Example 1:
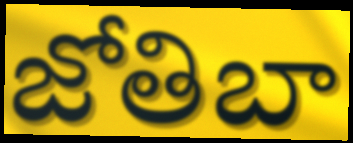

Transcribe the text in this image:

జోతిబా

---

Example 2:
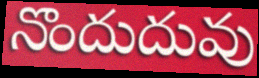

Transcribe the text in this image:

నొందుదువు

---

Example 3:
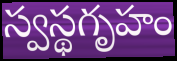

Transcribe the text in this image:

స్వస్థగృహం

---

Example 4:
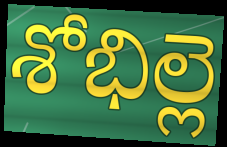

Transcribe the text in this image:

శోభిల్లె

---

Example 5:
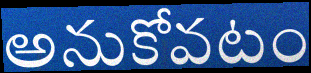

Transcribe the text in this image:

అనుకోవటం